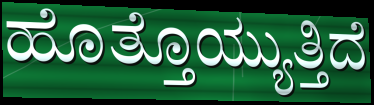
ಹೊತ್ತೊಯ್ಯುತ್ತಿದೆ